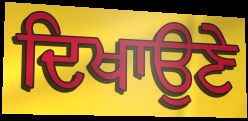
ਦਿਖਾਉਣੇ